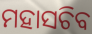
ମହାସଚିବ